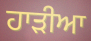
ਹਾੜੀਆ